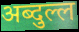
अब्दुल्ल